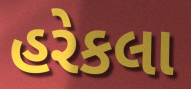
હરેકલા